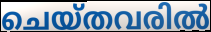
ചെയ്തവരിൽ